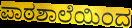
ಪಾಠಶಾಲೆಯಿಂದ